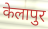
केलापुर